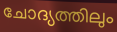
ചോദ്യത്തിലും